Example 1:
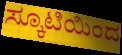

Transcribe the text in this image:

ಸ್ಕೂಟಿಯಿಂದ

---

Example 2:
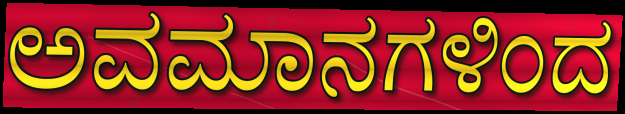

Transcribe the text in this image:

ಅವಮಾನಗಳಿಂದ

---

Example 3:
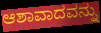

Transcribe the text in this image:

ಆಶಾವಾದವನ್ನು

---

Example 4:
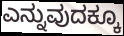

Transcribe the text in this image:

ಎನ್ನುವುದಕ್ಕೂ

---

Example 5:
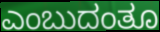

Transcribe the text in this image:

ಎಂಬುದಂತೂ